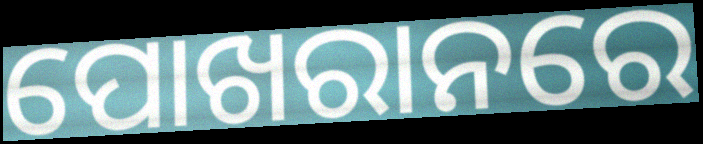
ପୋଖରାନରେ